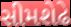
સીમશેઢે